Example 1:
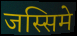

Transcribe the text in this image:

जस्सिमे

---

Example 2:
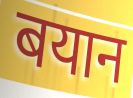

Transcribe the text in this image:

बयान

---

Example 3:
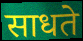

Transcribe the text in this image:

साधते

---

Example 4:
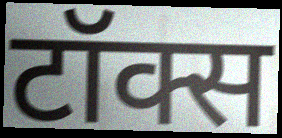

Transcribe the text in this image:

टॉक्स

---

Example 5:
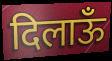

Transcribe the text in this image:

दिलाऊँ